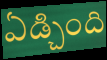
ఏడ్చింది